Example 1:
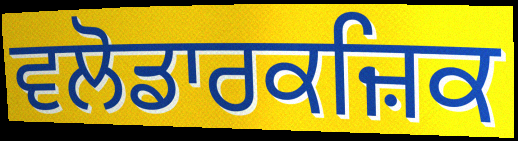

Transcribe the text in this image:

ਵਲੋਡਾਰਕਜ਼ਿਕ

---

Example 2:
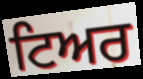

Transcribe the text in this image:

ਟਿਅਰ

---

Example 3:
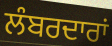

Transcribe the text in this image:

ਲੰਬਰਦਾਰਾਂ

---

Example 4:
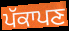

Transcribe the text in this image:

ਪੱਕਾਪਣ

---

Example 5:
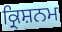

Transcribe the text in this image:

ਕ੍ਰਿਸ਼ਨਮ